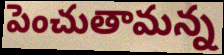
పెంచుతామన్న